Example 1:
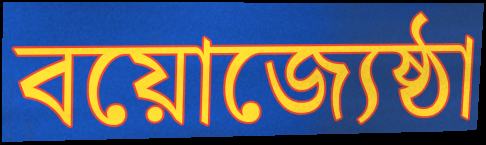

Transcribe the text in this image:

বয়োজ্যেষ্ঠা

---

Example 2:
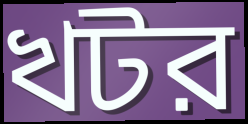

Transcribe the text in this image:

খটর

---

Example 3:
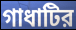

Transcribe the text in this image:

গাধাটির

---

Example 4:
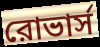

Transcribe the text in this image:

রোভার্স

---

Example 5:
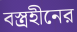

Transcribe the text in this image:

বস্ত্রহীনের